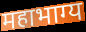
महाभाग्य